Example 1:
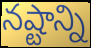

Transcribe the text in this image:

నష్టాన్ని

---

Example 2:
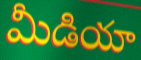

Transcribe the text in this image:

మీడియా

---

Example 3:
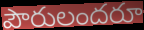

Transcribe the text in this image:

పౌరులందరూ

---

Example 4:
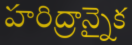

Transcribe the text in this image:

హరిద్రాన్నైక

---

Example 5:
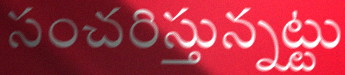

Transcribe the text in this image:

సంచరిస్తున్నట్టు